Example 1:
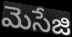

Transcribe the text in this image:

మెసేజి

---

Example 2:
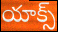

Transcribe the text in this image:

యాక్స్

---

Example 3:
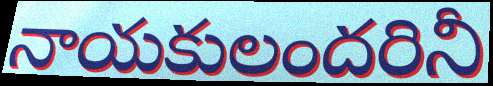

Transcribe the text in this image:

నాయకులందరినీ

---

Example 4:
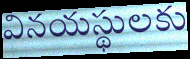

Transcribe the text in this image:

వినయస్థులకు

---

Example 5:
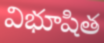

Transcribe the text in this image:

విభూషిత